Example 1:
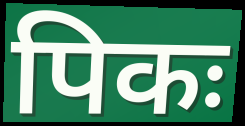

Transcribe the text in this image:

पिकः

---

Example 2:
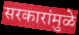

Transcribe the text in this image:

सरकारांमुळे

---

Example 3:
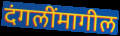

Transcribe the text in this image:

दंगलींमागील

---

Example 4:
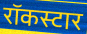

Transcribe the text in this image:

रॉकस्टार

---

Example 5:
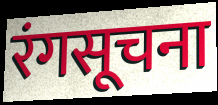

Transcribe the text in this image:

रंगसूचना